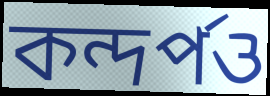
কন্দর্পও